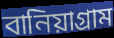
বানিয়াগ্রাম